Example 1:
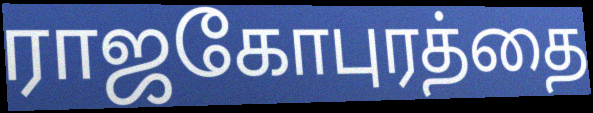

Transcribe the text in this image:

ராஜகோபுரத்தை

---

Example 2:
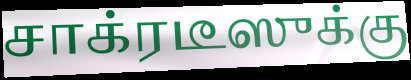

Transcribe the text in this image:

சாக்ரடீஸுக்கு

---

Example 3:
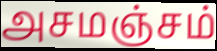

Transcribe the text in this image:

அசமஞ்சம்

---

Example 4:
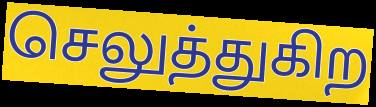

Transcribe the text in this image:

செலுத்துகிற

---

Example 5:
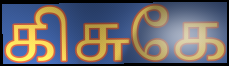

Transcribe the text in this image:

கிசுகே